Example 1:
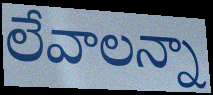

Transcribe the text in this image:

లేవాలన్నా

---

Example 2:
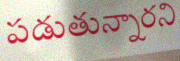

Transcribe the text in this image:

పడుతున్నారని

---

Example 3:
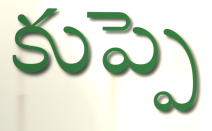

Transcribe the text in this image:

కుప్పె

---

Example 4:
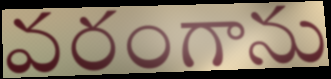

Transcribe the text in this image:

వరంగాను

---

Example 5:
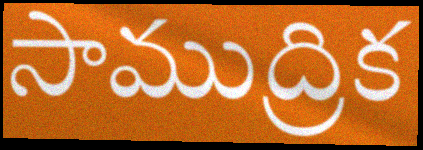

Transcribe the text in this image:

సాముద్రిక